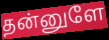
தன்னுளே